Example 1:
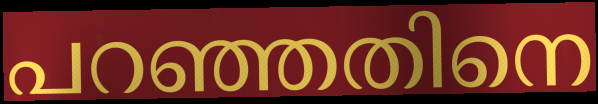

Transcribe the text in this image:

പറഞ്ഞതിനെ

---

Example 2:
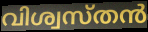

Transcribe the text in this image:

വിശ്വസ്തൻ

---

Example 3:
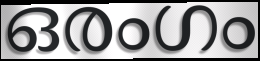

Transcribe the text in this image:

ഒരംഗം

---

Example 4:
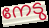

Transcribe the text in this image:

നേടു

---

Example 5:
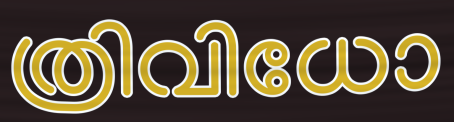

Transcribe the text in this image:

ത്രിവിധോ